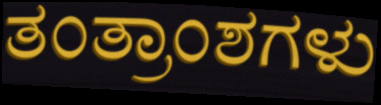
ತಂತ್ರಾಂಶಗಳು